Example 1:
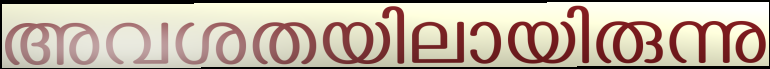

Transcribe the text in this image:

അവശതയിലായിരുന്നു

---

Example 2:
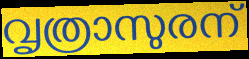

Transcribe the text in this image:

വൃത്രാസുരന്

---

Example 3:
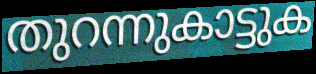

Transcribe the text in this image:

തുറന്നുകാട്ടുക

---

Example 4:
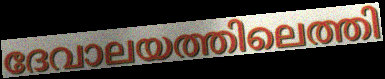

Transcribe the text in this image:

ദേവാലയത്തിലെത്തി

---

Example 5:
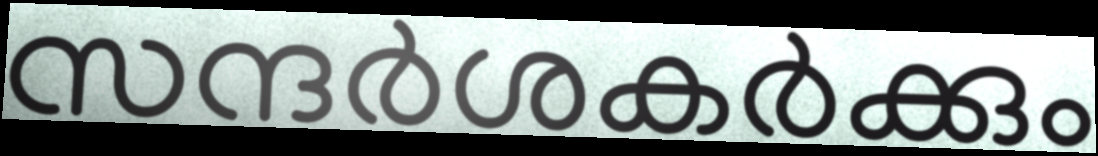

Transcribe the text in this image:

സന്ദർശകർക്കും